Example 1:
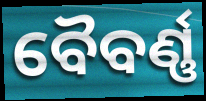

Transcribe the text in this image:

ବୈବର୍ଣ୍ଣ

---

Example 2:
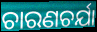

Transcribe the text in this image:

ଚାରଣଚର୍ଯା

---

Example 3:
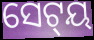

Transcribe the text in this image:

ସେଟ୍‌ୟ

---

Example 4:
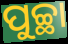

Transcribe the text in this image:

ପୁଚ୍ଛା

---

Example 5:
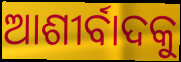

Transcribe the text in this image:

ଆଶୀର୍ବାଦକୁ